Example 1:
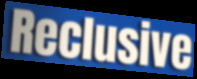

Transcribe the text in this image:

Reclusive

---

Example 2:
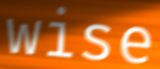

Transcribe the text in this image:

wise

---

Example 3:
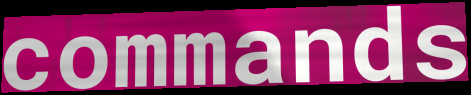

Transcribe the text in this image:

commands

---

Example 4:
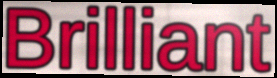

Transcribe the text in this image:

Brilliant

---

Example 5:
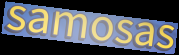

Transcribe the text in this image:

samosas